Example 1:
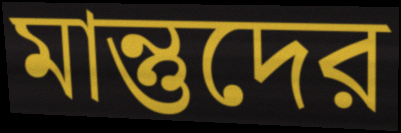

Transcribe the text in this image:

মান্তুদের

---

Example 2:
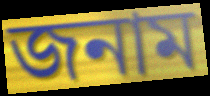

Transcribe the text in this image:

জনাম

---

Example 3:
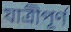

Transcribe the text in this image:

যাত্রীপূর্ণ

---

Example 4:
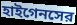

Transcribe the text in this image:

হাইগেনসের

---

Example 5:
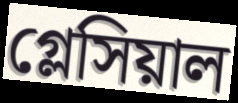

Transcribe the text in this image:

গ্লেসিয়াল